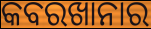
କବରଖାନାର